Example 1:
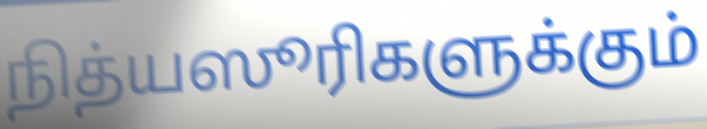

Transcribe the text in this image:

நித்யஸூரிகளுக்கும்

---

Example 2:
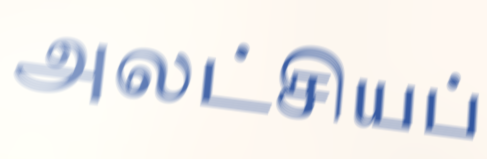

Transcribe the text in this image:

அலட்சியப்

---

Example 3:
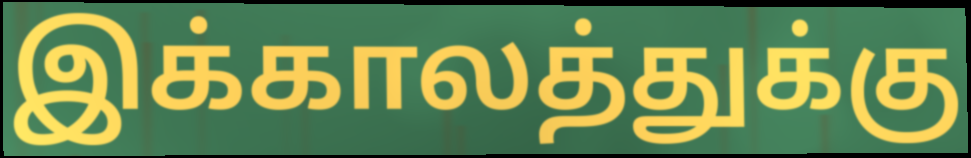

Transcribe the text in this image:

இக்காலத்துக்கு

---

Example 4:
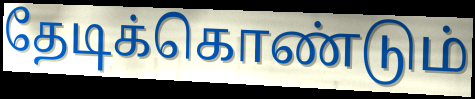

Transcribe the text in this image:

தேடிக்கொண்டும்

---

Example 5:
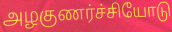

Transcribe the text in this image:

அழகுணர்ச்சியோடு